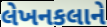
લેખનકલાને